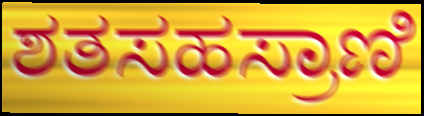
ಶತಸಹಸ್ರಾಣಿ